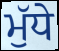
ਮੁੱਧੇ